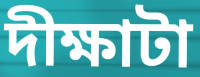
দীক্ষাটা